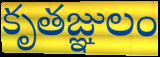
కృతజ్ఞులం